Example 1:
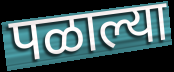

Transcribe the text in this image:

पळाल्या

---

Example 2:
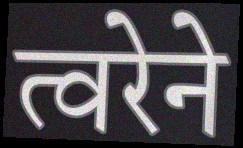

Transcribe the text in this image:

त्वरेने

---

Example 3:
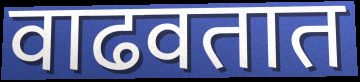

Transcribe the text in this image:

वाढवतात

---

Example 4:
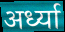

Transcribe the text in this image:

अर्ध्या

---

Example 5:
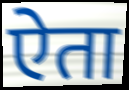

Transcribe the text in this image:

ऐता